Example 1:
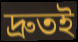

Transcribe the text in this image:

দ্রুতই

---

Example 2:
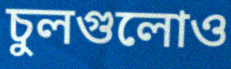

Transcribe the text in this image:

চুলগুলোও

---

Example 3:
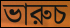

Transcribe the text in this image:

ভারুচ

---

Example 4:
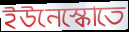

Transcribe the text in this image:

ইউনেস্কোতে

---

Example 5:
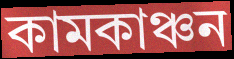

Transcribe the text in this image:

কামকাঞ্চন